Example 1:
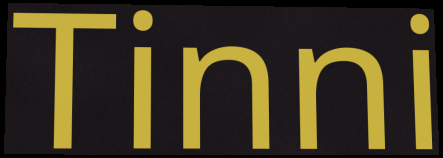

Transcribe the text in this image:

Tinni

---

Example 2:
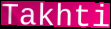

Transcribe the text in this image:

Takhti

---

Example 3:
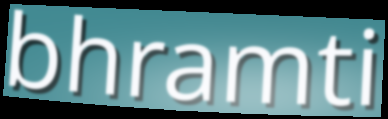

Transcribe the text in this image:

bhramti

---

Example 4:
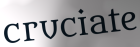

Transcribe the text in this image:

cruciate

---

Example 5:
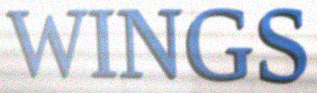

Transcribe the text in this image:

WINGS